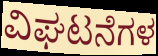
ವಿಘಟನೆಗಳ